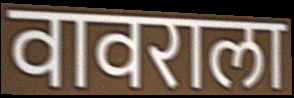
वावराला